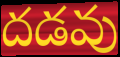
దడవు